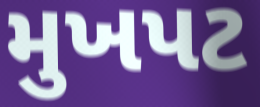
મુખપટ